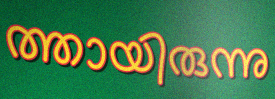
ത്തായിരുന്നു